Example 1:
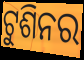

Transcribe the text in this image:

ଟୁଶିନର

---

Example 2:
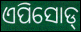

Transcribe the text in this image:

ଏପିସୋଡ୍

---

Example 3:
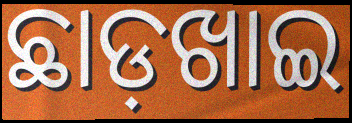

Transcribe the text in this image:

ଛାଡ଼ଖାଇ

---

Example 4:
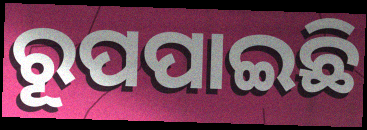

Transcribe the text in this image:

ରୂପପାଇଛି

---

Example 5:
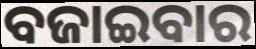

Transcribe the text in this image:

ବଜାଇବାର